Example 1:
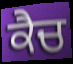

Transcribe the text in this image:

ਕੈਚ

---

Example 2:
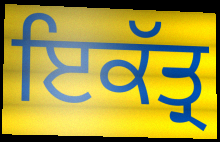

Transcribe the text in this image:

ਇਕੱਤ੍ਰ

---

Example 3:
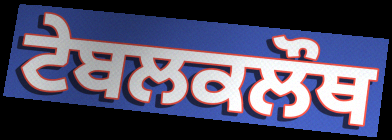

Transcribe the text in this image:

ਟੇਬਲਕਲੌਥ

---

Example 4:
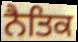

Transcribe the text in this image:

ਨੈਤਿਕ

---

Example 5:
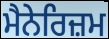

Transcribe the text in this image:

ਮੈਨੇਰਿਜ਼ਮ